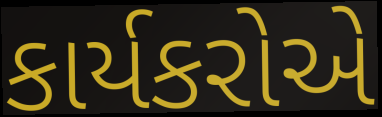
કાર્યકરોએ